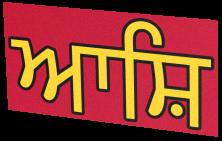
ਆਸ਼ਿ